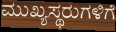
ಮುಖ್ಯಸ್ಥರುಗಳಿಗೆ